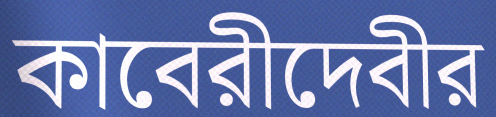
কাবেরীদেবীর